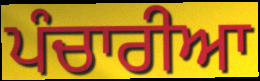
ਪੰਚਾਰੀਆ